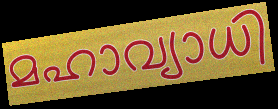
മഹാവ്യാധി